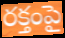
రక్తంపై